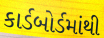
કાર્ડબોર્ડમાંથી